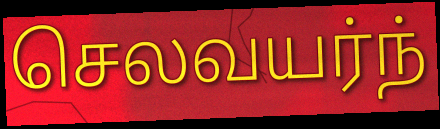
செலவயர்ந்